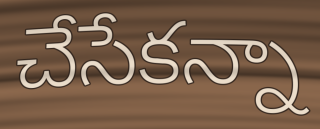
చేసేకన్నా